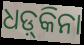
ଧଡ଼୍‍କିନା